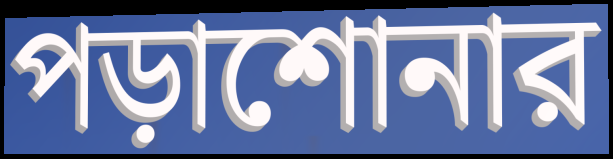
পড়াশোনার